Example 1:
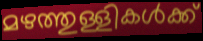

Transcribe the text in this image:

മഴത്തുള്ളികൾക്ക്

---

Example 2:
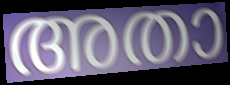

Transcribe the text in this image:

അതാ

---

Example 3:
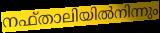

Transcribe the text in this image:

നഫ്താലിയിൽനിന്നും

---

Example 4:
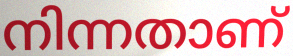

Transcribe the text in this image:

നിന്നതാണ്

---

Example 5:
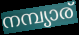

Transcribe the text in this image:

നമ്പ്യാര്